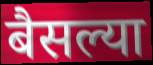
बैसल्या